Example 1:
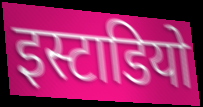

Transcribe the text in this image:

इस्टाडियो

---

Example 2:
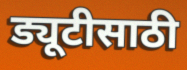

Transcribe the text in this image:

ड्यूटीसाठी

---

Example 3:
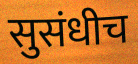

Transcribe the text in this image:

सुसंधीच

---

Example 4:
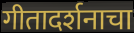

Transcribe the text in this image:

गीतादर्शनाचा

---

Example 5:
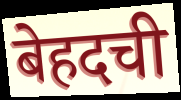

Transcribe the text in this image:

बेहदची